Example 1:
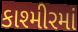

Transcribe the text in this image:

કાશ્મીરમાં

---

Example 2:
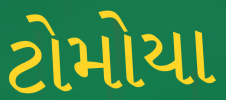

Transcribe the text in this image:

ટોમોયા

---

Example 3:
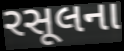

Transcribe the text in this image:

રસૂલના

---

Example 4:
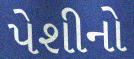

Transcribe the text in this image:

પેશીનો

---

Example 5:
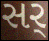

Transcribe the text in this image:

સર્